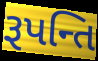
રૂપન્તિ